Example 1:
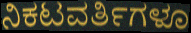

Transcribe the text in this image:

ನಿಕಟವರ್ತಿಗಳೂ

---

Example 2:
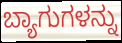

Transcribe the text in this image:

ಬ್ಯಾಗುಗಳನ್ನು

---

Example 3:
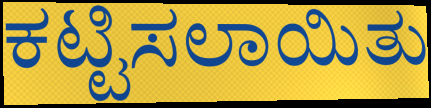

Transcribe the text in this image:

ಕಟ್ಟಿಸಲಾಯಿತು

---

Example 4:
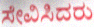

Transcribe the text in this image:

ಸೇವಿಸಿದರು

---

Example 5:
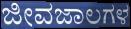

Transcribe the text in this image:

ಜೀವಜಾಲಗಳ